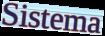
Sistema